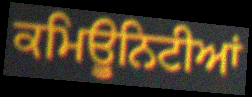
ਕਮਿਊਨਿਟੀਆਂ